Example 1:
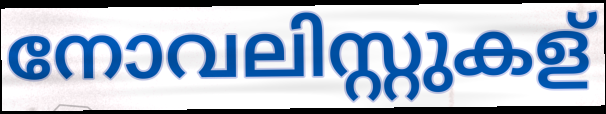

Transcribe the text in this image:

നോവലിസ്റ്റുകള്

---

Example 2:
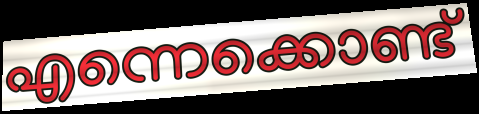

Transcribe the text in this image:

എന്നെക്കൊണ്ട്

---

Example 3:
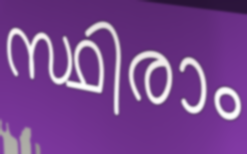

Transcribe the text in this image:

സ്ഥിരാം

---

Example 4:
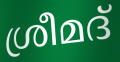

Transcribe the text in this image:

ശ്രീമദ്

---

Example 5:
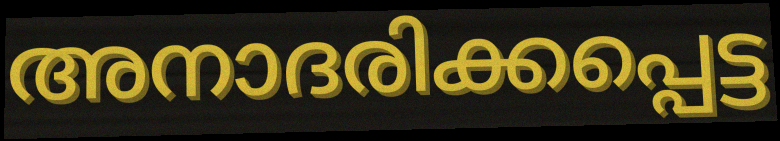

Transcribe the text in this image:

അനാദരിക്കപ്പെട്ട